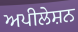
ਅਪੀਲੇਸ਼ਨ